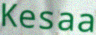
Kesaa